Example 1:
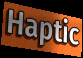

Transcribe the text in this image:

Haptic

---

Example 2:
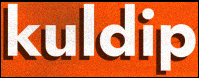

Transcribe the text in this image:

kuldip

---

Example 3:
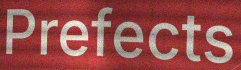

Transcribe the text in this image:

Prefects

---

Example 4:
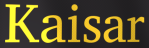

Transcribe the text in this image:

Kaisar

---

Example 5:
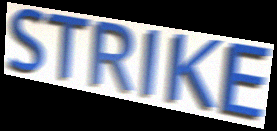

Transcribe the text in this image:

STRIKE